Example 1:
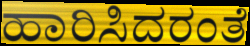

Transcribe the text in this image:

ಹಾರಿಸಿದರಂತೆ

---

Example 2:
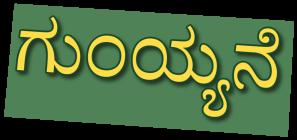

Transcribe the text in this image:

ಗುಂಯ್ಯನೆ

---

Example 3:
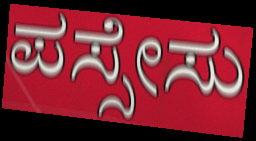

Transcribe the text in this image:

ಪಸ್ಸೇಸು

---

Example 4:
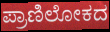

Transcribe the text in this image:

ಪ್ರಾಣಿಲೋಕದ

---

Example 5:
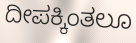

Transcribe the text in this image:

ದೀಪಕ್ಕಿಂತಲೂ